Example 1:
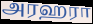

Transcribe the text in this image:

அரஹரா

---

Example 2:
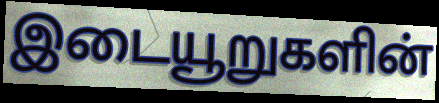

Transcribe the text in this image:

இடையூறுகளின்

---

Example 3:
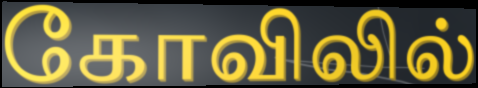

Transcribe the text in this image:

கோவிலில்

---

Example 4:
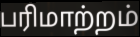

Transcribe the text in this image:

பரிமாற்றம்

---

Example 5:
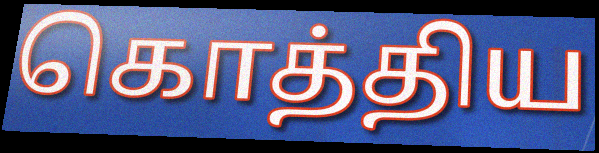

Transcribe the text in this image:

கொத்திய